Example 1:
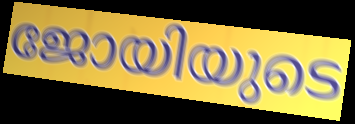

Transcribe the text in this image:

ജോയിയുടെ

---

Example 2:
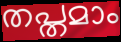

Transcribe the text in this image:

തപ്തമാം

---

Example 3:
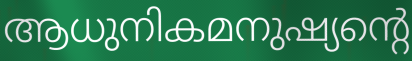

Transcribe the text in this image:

ആധുനികമനുഷ്യന്റെ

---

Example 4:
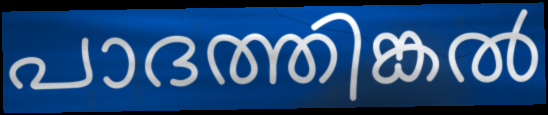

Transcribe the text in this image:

പാദത്തിങ്കൽ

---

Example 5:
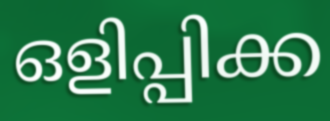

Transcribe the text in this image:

ഒളിപ്പിക്ക